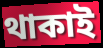
থাকাই